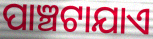
ପାଞ୍ଚଟାଯାଏ